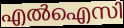
എൽഐസി